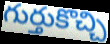
గుర్తుకొచ్చి